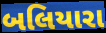
બલિયારા